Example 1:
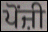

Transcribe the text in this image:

ਪੋਂਜ਼ੀ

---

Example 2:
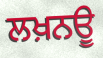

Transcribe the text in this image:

ਲਖ਼ਨਊ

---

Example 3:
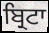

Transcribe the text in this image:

ਬ੍ਰਿਟਾ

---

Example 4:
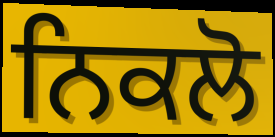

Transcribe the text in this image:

ਨਿਕਲੋ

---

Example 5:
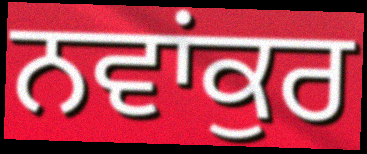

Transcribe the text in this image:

ਨਵਾਂਕੁਰ